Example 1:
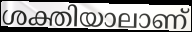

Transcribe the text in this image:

ശക്തിയാലാണ്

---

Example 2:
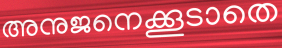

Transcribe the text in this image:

അനുജനെക്കൂടാതെ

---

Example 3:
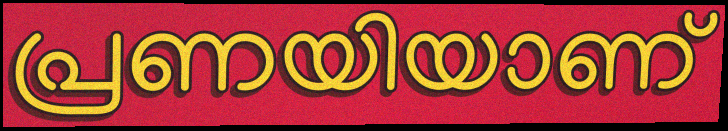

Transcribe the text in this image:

പ്രണയിയാണ്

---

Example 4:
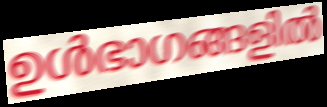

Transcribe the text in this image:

ഉൾഭാഗങ്ങളിൽ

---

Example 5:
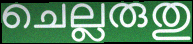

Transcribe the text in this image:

ചെല്ലരുതു